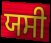
ਯਸੀ